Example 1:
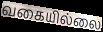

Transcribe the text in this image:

வகையில்லை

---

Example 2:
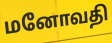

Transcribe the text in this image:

மனோவதி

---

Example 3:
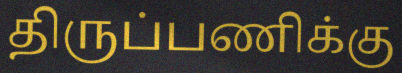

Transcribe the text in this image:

திருப்பணிக்கு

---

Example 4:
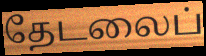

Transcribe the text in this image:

தேடலைப்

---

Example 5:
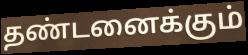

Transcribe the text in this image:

தண்டனைக்கும்